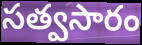
సత్వసారం